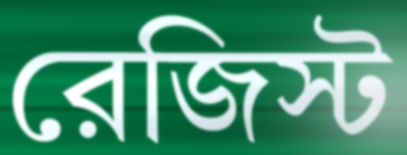
রেজিস্ট